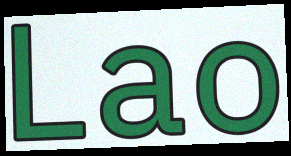
Lao